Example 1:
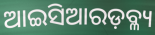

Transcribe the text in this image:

ଆଇସିଆରଡ଼ବ୍ଳ୍ୟ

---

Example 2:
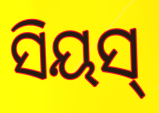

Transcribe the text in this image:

ସିୟସ୍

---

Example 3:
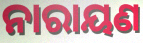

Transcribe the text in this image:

ନାରାୟଣ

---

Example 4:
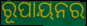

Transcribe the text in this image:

ରୂପାୟନର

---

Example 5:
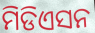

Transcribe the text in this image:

ମିଡିଏସନ